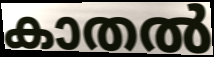
കാതൽ